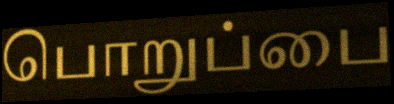
பொறுப்பை